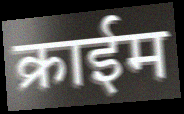
क्राईम